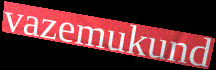
vazemukund